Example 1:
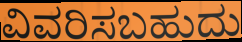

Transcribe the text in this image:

ವಿವರಿಸಬಹುದು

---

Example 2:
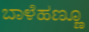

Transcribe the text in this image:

ಬಾಳೆಹಣ್ಣೂ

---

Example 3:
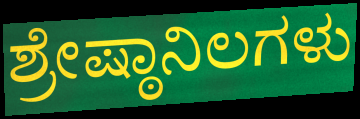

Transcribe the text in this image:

ಶ್ರೇಷ್ಠಾನಿಲಗಳು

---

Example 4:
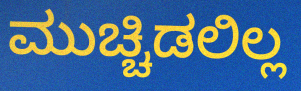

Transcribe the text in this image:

ಮುಚ್ಚಿಡಲಿಲ್ಲ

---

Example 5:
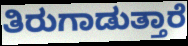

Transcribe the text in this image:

ತಿರುಗಾಡುತ್ತಾರೆ